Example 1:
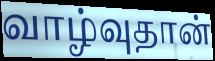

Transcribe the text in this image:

வாழ்வுதான்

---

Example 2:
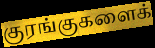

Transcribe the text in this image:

குரங்குகளைக்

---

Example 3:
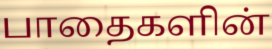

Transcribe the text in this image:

பாதைகளின்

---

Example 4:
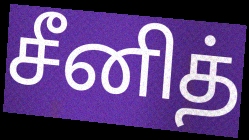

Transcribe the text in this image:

சீனித்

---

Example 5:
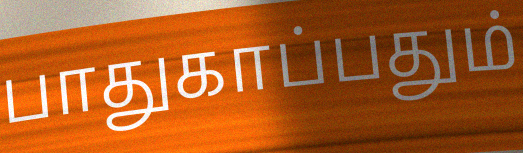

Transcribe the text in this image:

பாதுகாப்பதும்